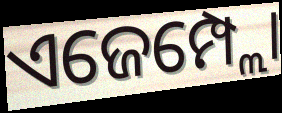
ଏଜେମ୍ପ୍ଲୋ